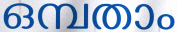
ഒമ്പതാം